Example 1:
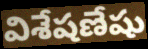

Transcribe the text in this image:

విశేషణేషు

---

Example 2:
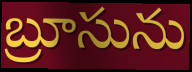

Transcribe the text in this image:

బ్రూసును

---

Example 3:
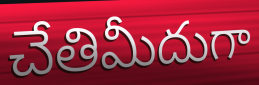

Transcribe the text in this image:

చేతిమీదుగా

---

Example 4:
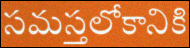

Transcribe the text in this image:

సమస్తలోకానికి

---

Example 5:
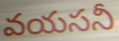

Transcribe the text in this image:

వయసనీ